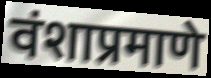
वंशाप्रमाणे